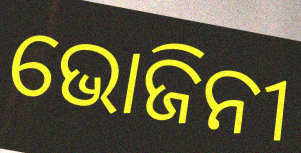
ଭୋଜିନୀ